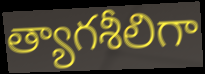
త్యాగశీలిగా